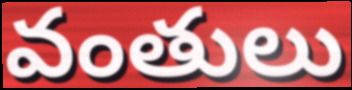
వంతులు